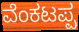
ವೆಂಕಟಪ್ಪ